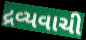
દ્રવ્યવાચી